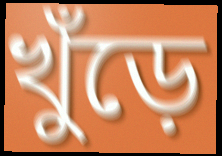
খুঁড়ে